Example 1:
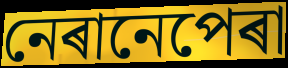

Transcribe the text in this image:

নেৰানেপেৰা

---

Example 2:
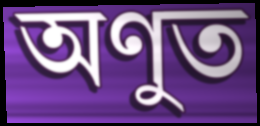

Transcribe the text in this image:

অণুত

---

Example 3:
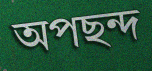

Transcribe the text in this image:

অপছন্দ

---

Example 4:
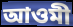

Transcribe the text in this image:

আওমী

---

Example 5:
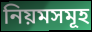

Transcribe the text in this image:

নিয়মসমূহ